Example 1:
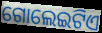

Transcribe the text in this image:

ଗୋଲେଇଟିଏ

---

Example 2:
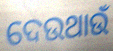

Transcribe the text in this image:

ଦେଉଥାଉଁ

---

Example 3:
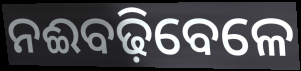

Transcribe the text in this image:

ନଈବଢ଼ିବେଳେ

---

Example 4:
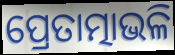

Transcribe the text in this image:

ପ୍ରେତାତ୍ମାଭଳି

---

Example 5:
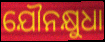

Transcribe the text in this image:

ଯୌନକ୍ଷୁଧା